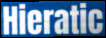
Hieratic